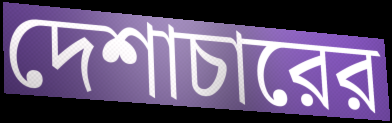
দেশাচারের